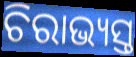
ଚିରାଭ୍ୟସ୍ତ